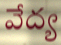
వేద్య